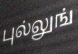
புல்லுங்